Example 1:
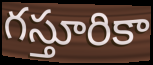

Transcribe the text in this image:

గస్తూరికా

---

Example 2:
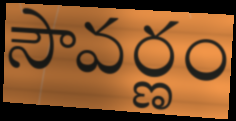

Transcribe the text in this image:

సౌవర్ణం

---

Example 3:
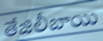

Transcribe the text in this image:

తేజిలీబాయి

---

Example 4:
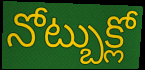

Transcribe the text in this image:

నోట్బుక్లో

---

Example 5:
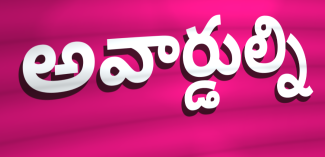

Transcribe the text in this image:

అవార్డుల్ని